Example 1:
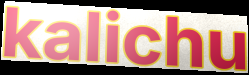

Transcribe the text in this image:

kalichu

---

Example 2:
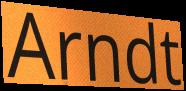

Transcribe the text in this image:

Arndt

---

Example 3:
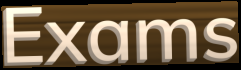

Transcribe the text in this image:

Exams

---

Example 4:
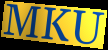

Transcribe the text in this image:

MKU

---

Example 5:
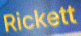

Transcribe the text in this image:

Rickett